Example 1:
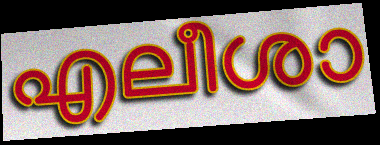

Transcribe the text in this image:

എലീശാ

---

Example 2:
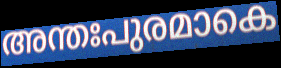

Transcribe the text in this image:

അന്തഃപുരമാകെ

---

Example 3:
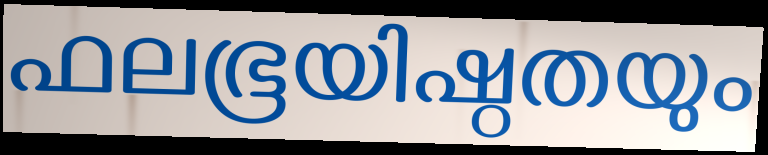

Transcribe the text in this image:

ഫലഭൂയിഷ്ഠതയും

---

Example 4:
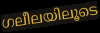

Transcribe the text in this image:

ഗലീലയിലൂടെ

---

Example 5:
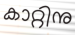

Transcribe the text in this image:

കാറ്റിനു